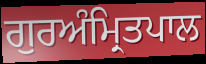
ਗੁਰਅੰਮ੍ਰਿਤਪਾਲ